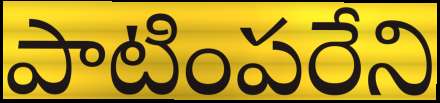
పాటింపరేని